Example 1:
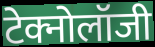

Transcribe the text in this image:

टेक्‍नोलॉजी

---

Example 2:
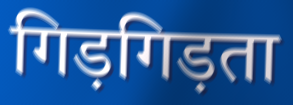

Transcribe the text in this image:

गिड़गिड़ता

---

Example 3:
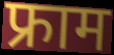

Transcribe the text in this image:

फ्राम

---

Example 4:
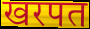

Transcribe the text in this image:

खरपत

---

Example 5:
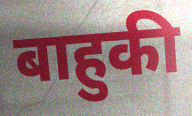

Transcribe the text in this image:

बाहुकी